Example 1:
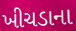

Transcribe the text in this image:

ખીચડાના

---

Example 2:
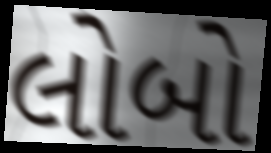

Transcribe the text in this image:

લોબો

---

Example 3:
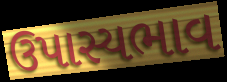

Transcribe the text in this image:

ઉપાસ્યભાવ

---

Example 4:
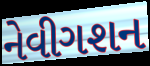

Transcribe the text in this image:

નેવીગશન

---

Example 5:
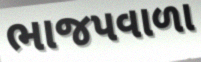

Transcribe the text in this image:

ભાજપવાળા